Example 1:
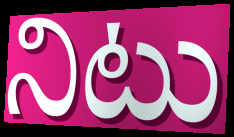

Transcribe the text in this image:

నిటు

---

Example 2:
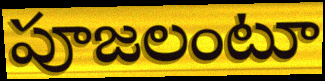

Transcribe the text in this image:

పూజలంటూ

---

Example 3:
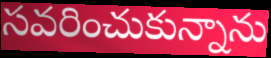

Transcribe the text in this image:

సవరించుకున్నాను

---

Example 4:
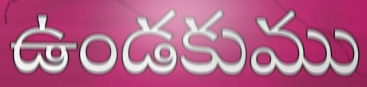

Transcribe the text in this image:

ఉండకుము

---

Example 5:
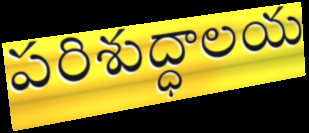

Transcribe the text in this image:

పరిశుద్ధాలయ